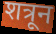
शत्रून